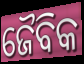
ଜୈବିକ